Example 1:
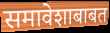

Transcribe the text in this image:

समावेशाबाबत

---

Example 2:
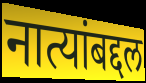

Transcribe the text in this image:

नात्यांबद्दल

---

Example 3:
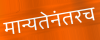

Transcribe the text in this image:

मान्यतेनंतरच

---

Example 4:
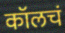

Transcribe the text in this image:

कॉलचं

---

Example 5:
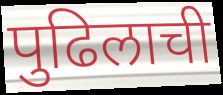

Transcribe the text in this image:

पुढिलाची